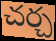
చర్చ